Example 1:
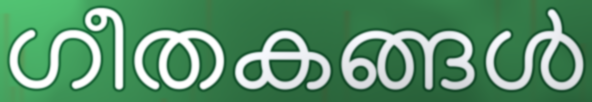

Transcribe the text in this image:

ഗീതകങ്ങൾ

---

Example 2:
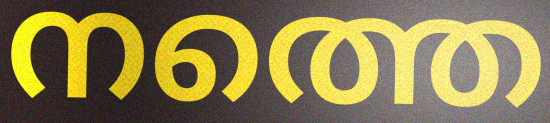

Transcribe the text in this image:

നത്തെ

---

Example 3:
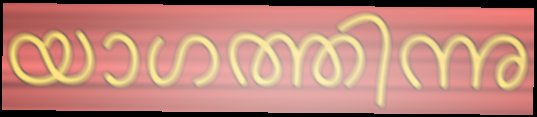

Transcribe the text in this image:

യാഗത്തിന്നു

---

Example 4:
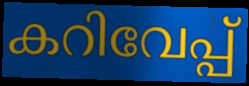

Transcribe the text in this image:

കറിവേപ്പ്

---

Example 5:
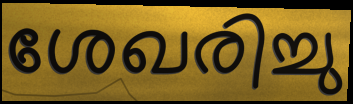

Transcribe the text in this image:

ശേഖരിച്ചു